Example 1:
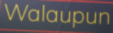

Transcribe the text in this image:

Walaupun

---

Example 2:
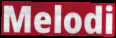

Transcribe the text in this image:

Melodi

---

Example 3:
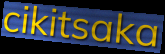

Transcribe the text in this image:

cikitsaka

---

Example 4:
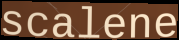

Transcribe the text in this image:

scalene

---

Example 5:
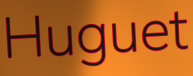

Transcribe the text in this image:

Huguet